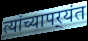
त्यांच्यापर्यंत